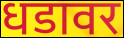
धडावर